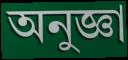
অনুজ্ঞা